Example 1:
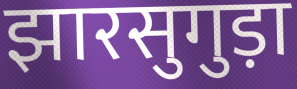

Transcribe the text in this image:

झारसुगुड़ा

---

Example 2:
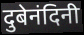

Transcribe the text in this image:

दुबेनंदिनी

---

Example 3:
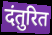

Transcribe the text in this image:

दंतुरित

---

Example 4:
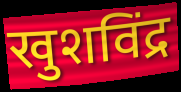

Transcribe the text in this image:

खुशविंद्र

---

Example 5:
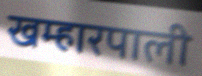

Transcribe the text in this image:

खम्हारपाली